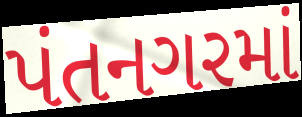
પંતનગરમાં